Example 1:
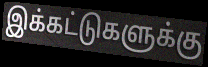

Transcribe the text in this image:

இக்கட்டுகளுக்கு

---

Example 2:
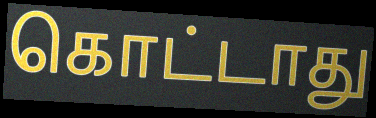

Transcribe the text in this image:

கொட்டாது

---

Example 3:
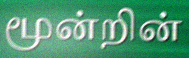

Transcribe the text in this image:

மூன்றின்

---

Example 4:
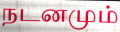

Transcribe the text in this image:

நடனமும்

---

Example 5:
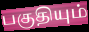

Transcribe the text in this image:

பகுதியும்